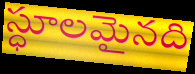
స్ధూలమైనది